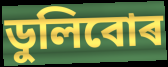
ডুলিবোৰ